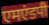
एमएंडपी